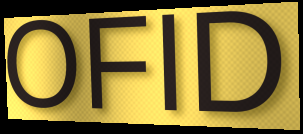
OFID